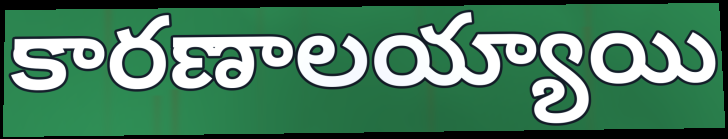
కారణాలయ్యాయి